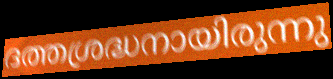
ദത്തശ്രദ്ധനായിരുന്നു